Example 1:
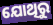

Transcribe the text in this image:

ଯୋଥିରୁ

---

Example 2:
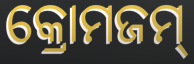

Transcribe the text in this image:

କ୍ରୋମଜମ୍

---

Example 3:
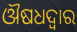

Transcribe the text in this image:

ଔଷଧଦ୍ୱାର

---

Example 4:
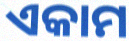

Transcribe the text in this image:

ଏକାମ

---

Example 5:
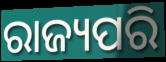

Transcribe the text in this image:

ରାଜ୍ୟପରି